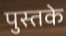
पुस्तके